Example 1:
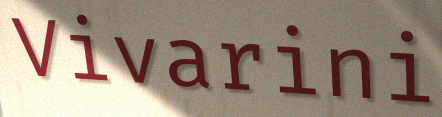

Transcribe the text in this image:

Vivarini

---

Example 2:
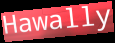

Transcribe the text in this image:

Hawally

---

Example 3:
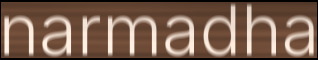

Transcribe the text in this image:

narmadha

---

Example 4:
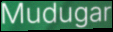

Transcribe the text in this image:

Mudugar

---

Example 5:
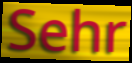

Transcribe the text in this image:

Sehr